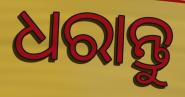
ଧରାନ୍ତୁ